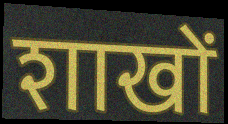
शाखों